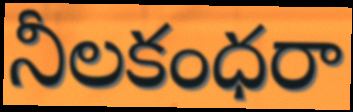
నీలకంధరా